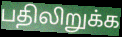
பதிலிறுக்க